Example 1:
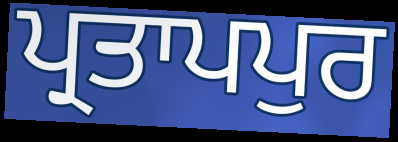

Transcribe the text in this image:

ਪ੍ਰਤਾਪਪੁਰ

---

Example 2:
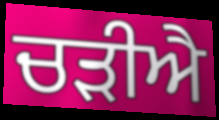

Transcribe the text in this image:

ਚੜੀਐ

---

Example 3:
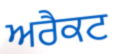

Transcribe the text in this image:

ਅਰੈਕਟ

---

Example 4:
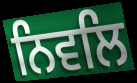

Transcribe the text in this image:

ਨਿਵਲਿ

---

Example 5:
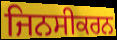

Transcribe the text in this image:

ਜਿਨਸੀਕਰਨ